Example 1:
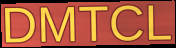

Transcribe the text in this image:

DMTCL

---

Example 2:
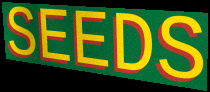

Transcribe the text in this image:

SEEDS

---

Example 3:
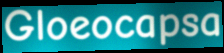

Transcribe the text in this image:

Gloeocapsa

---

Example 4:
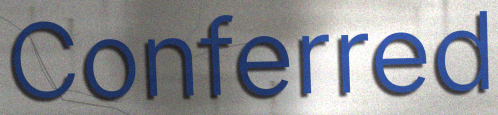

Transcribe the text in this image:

Conferred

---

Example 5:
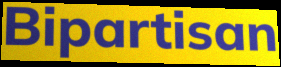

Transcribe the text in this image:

Bipartisan